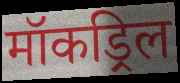
मॉकड्रिल